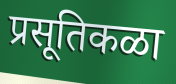
प्रसूतिकळा